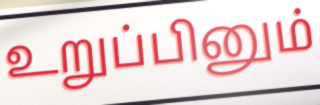
உறுப்பினும்